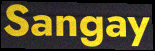
Sangay